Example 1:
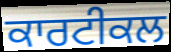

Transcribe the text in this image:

ਕਾਰਟੀਕਲ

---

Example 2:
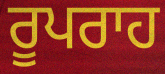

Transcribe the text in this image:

ਰੂਪਰਾਹ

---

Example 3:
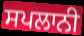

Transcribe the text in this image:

ਸਪਲਾਨੀ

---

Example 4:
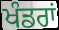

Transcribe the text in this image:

ਖੰਡਰਾਂ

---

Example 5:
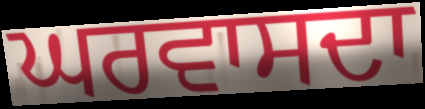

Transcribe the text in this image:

ਘਰਵਾਸਦਾ